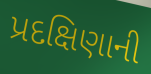
પ્રદક્ષિણાની